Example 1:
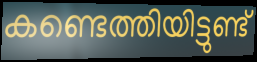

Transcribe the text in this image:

കണ്ടെത്തിയിട്ടുണ്ട്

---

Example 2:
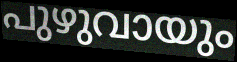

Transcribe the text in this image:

പുഴുവായും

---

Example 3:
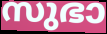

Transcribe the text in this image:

സുഭാ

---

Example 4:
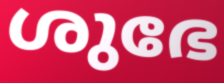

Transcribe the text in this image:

ശുഭേ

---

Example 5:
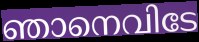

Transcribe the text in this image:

ഞാനെവിടേ